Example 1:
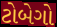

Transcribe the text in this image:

ટોબેગો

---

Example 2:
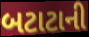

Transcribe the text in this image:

બટાટાની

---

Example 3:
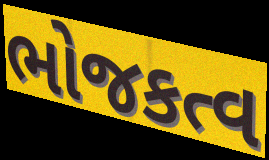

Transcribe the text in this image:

ભોજકત્વ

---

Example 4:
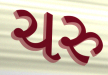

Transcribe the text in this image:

ચરુ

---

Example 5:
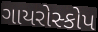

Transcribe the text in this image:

ગાયરોસ્કોપ